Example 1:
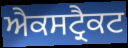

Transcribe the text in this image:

ਐਕਸਟ੍ਰੈਕਟ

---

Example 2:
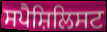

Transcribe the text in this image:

ਸਪੈਸ਼ਿਲਿਸਟ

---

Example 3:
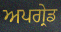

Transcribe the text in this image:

ਅਪਗ੍ਰੇਡ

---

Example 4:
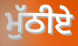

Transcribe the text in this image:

ਮੁੱਠੀਏ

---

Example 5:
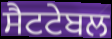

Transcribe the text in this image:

ਸੈਟਟੇਬਲ